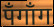
पँगाँग